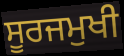
ਸੂਰਜਮੁਖੀ